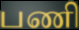
பணி